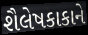
શૈલેષકાકાને